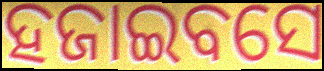
ହଜାଇବସେ